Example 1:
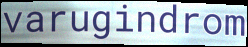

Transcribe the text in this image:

varugindrom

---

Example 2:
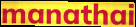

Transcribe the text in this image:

manathai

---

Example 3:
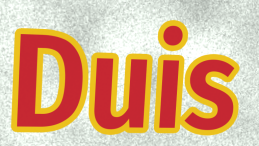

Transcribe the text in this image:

Duis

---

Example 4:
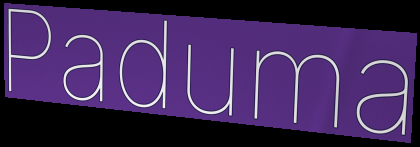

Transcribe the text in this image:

Paduma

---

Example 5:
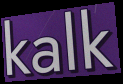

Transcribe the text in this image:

kalk